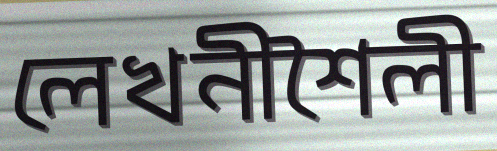
লেখনীশৈলী